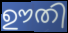
ഊതി